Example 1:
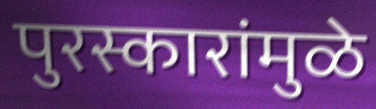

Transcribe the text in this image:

पुरस्कारांमुळे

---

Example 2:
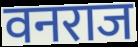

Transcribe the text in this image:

वनराज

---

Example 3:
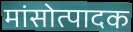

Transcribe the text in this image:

मांसोत्पादक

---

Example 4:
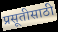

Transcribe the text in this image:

प्रसूतीसाठी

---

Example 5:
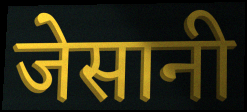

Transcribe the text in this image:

जेसानी